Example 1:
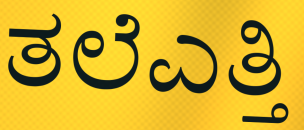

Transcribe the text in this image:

ತಲೆಎತ್ತಿ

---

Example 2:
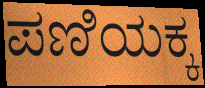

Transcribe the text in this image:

ಪಣಿಯಕ್ಕ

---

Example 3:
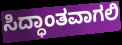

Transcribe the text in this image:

ಸಿದ್ಧಾಂತವಾಗಲಿ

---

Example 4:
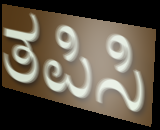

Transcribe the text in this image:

ತಪಿಸಿ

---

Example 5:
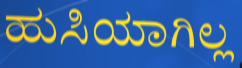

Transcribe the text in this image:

ಹುಸಿಯಾಗಿಲ್ಲ